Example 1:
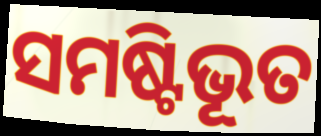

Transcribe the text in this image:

ସମଷ୍ଟିଭୂତ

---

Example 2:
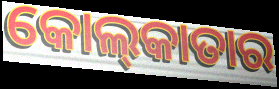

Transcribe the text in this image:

କୋଲ୍‌କାତାର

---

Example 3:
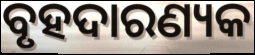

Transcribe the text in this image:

ବୃହଦାରଣ୍ୟକ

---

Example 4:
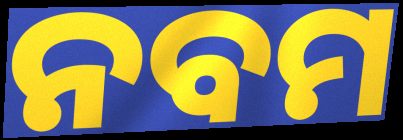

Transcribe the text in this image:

ନବମ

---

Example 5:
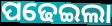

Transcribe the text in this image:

ପଢେଇଲା